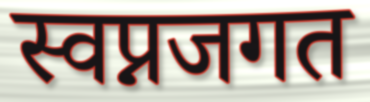
स्वप्नजगत